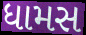
ધામસ